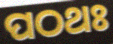
ପଠଥଃ